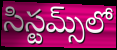
సిస్టమ్స్‌లో